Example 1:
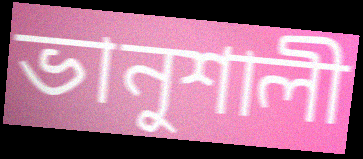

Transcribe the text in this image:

ভানুশালী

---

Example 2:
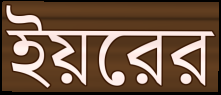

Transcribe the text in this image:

ইয়রের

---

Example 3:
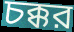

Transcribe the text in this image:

চক্কর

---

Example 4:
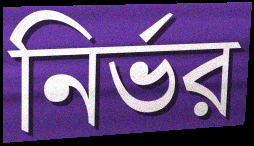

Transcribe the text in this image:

নির্ভর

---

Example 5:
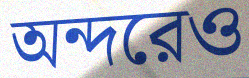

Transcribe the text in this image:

অন্দরেও